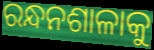
ରନ୍ଧନଶାଳାକୁ